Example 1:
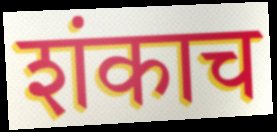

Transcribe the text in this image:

शंकाच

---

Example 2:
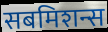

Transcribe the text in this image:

सबमिशन्स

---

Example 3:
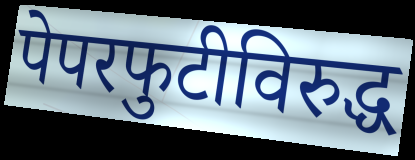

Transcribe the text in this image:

पेपरफुटीविरुद्ध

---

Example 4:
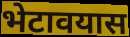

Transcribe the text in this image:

भेटावयास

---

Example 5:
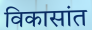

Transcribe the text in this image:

विकासांत